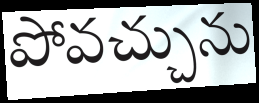
పోవచ్చును